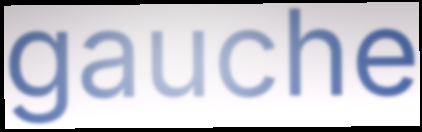
gauche